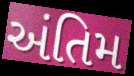
અંતિમ